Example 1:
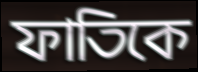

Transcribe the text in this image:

ফাতিকে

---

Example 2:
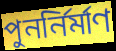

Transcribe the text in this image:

পুনর্নির্মাণ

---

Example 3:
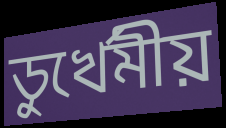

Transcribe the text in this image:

ডুর্খেমীয়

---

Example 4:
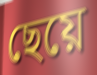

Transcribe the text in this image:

ছেয়ে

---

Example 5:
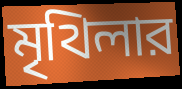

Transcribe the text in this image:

মৃথিলার